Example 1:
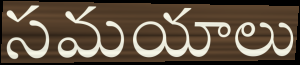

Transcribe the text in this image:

సమయాలు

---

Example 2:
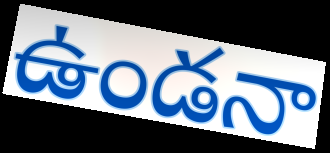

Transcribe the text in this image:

ఉండనా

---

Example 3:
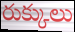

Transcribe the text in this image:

రుక్కులు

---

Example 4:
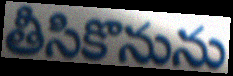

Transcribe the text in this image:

తీసికొనును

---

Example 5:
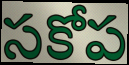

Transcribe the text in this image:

సకోప